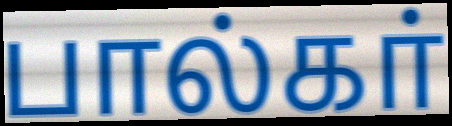
பால்கர்